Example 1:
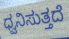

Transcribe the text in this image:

ಧ್ವನಿಸುತ್ತದೆ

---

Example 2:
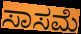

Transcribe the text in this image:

ಸಾಸಮೆ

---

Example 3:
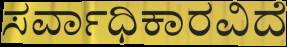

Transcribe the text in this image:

ಸರ್ವಾಧಿಕಾರವಿದೆ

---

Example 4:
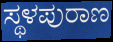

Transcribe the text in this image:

ಸ್ಥಳಪುರಾಣ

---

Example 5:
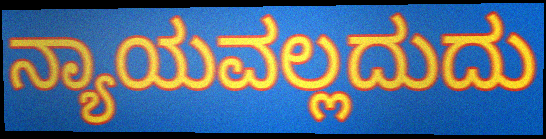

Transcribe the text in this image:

ನ್ಯಾಯವಲ್ಲದುದು